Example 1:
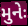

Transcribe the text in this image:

મુનેઃ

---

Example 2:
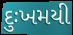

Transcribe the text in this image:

દુઃખમયી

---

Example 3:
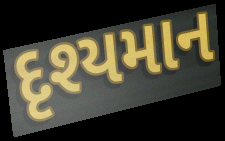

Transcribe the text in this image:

દૃશ્યમાન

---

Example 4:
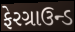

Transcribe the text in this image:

ફેરગ્રાઉન્ડ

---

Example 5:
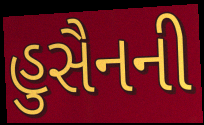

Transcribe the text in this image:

હુસૈનની